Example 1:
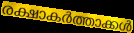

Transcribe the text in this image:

രക്ഷാകർത്താക്കൾ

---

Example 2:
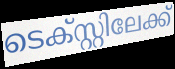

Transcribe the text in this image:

ടെക്സ്റ്റിലേക്ക്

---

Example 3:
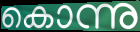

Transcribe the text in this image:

കൊന്നു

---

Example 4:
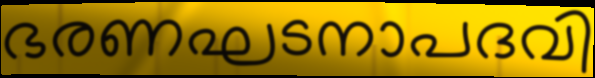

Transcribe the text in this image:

ഭരണഘടനാപദവി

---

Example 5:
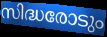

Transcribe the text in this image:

സിദ്ധരോടും